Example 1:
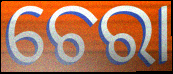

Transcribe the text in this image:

ଚେରା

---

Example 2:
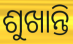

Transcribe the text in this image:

ଶୁଖାନ୍ତି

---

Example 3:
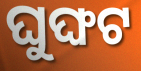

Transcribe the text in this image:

ଘୁଙ୍ଘଟ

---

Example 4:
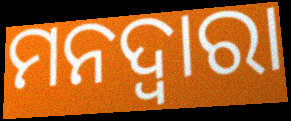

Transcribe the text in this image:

ମନଦ୍ଵାରା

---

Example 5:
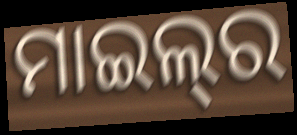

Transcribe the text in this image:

ମାଇଲ୍‍ର